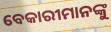
ବେକାରୀମାନଙ୍କୁ